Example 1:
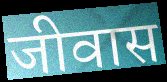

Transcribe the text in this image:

जीवास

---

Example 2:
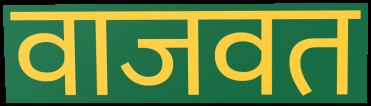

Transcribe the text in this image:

वाजवत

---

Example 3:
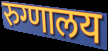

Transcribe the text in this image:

रुग्णालय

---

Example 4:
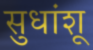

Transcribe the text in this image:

सुधांशू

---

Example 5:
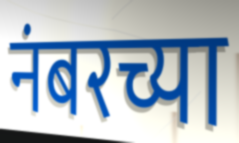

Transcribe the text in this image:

नंबरच्या